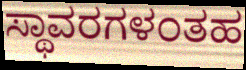
ಸ್ಥಾವರಗಳಂತಹ